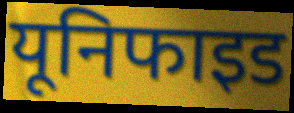
यूनिफाइड